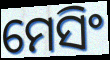
ମେସିଂ